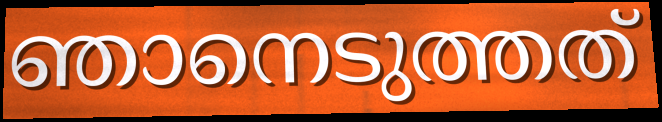
ഞാനെടുത്തത്